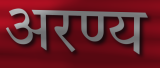
अरण्य